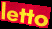
letto